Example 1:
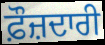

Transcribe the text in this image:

ਫ਼ੌਜ਼ਦਾਰੀ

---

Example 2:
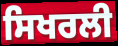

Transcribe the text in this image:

ਸਿਖਰਲੀ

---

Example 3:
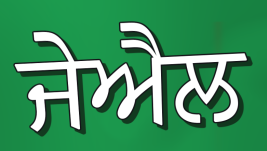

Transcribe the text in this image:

ਜੇਐਲ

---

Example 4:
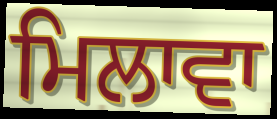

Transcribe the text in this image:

ਮਿਲਾਵਾ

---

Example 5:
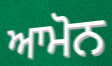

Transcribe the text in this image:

ਆਮੋਨ